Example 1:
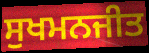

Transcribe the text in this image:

ਸੁਖਮਨਜੀਤ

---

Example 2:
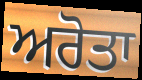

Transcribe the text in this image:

ਅਰੋਤਾ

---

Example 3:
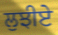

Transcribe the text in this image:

ਲੁਝੀਏ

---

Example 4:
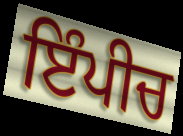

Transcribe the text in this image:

ਇੰਪੀਚ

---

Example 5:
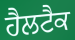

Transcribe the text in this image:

ਹੈਲਟੈਕ